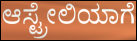
ಆಸ್ಟ್ರೇಲಿಯಾಗೆ